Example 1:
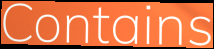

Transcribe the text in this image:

Contains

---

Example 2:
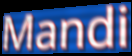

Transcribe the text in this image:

Mandi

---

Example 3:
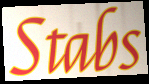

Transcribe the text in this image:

Stabs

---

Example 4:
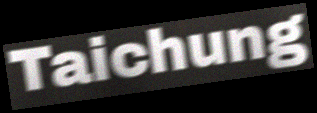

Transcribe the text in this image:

Taichung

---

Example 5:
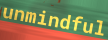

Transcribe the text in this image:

unmindful